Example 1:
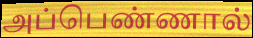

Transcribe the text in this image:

அப்பெண்ணால்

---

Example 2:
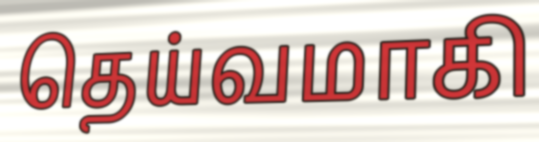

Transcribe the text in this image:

தெய்வமாகி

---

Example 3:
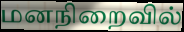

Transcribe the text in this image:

மனநிறைவில்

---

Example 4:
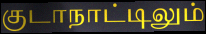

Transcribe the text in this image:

குடாநாட்டிலும்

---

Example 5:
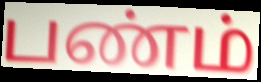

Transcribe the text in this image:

பண்ம்